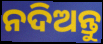
ନଦିଅନ୍ତୁ